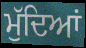
ਮੁੱਦਿਆਂ